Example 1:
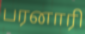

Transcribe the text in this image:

பரனாரி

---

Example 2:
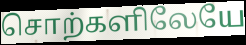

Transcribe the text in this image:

சொற்களிலேயே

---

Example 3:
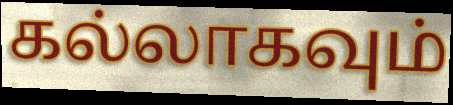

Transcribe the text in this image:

கல்லாகவும்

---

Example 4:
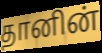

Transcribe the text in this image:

தானின்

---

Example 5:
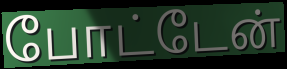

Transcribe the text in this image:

போட்டேன்